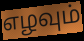
எழவும்